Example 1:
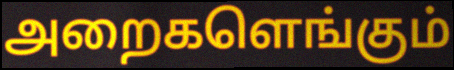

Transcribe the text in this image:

அறைகளெங்கும்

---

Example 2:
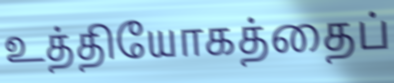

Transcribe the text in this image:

உத்தியோகத்தைப்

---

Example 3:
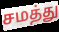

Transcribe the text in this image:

சமத்து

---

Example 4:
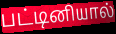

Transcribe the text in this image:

பட்டினியால்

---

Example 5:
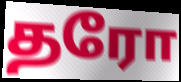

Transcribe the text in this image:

தரோ